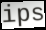
ips